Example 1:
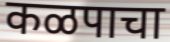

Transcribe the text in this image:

कळपाचा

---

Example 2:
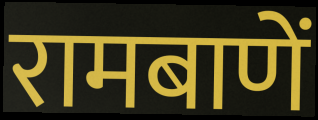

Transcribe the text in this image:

रामबाणें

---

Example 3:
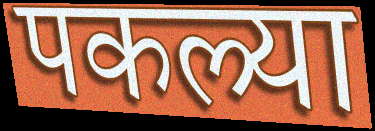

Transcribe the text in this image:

पकल्या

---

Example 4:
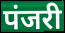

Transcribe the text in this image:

पंजरी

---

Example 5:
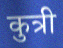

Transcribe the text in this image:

कुत्री